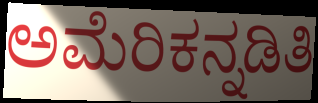
ಅಮೆರಿಕನ್ನಡಿತಿ